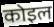
कोइल